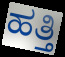
ಹತ್ತಿ